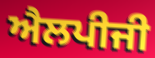
ਐਲਪੀਜੀ